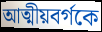
আত্মীয়বর্গকে